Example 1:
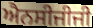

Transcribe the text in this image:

ਐਨਸੀਜੀਜੀ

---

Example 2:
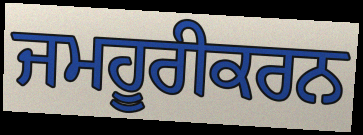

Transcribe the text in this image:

ਜਮਹੂਰੀਕਰਨ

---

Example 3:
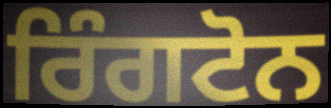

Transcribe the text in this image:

ਰਿੰਗਟੋਨ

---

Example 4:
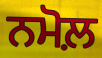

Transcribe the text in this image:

ਨਮੋਲ਼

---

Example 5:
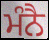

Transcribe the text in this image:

ਮੰਨੈ